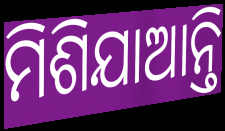
ମିଶିଯାଆନ୍ତି